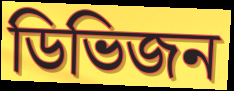
ডিভিজন